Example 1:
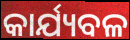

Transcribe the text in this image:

କାର୍ଯ୍ୟବଳ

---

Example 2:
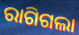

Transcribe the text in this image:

ରାଗିଗଲା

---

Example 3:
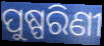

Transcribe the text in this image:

ପୁଷ୍ପରିଣୀ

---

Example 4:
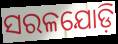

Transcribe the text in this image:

ସରଳଯୋଡ଼ି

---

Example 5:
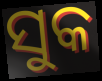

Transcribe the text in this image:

ସୁକ